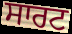
ਸਾਰਟ